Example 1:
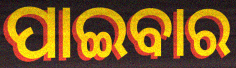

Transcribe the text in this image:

ପାଇବାର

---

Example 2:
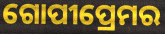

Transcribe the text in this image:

ଗୋପୀପ୍ରେମର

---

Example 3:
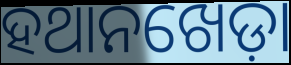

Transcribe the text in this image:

ହଥାନଖେଡ଼ା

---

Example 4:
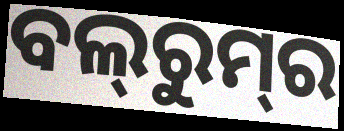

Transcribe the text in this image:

ବଲ୍‍ରୁମ୍‌ର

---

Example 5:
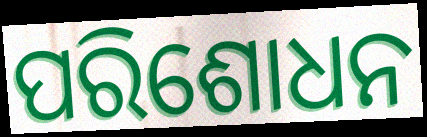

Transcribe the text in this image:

ପରିଶୋଧନ